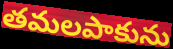
తమలపాకును